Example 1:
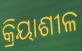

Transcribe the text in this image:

କ୍ରିୟାଶୀଳ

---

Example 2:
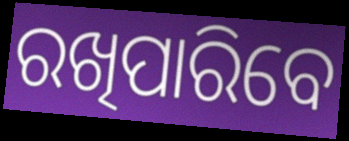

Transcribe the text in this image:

ରଖିପାରିବେ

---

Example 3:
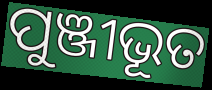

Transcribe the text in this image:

ପୁଞ୍ଜୀଭୂତ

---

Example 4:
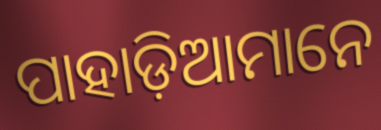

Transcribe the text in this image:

ପାହାଡ଼ିଆମାନେ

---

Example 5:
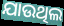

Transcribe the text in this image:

ଯାଉଥିଲ